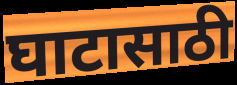
घाटासाठी